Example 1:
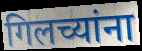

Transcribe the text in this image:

गिलच्यांना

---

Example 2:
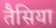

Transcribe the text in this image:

तैसिया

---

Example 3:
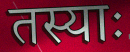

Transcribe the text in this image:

तस्याः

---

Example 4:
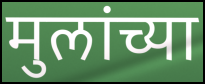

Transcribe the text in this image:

मुलांच्या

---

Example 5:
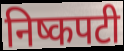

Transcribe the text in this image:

निष्कपटी